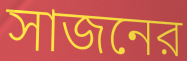
সাজনের